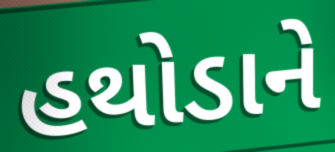
હથોડાને